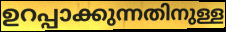
ഉറപ്പാക്കുന്നതിനുള്ള